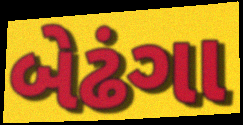
બેઢંગા